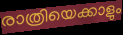
രാത്രിയെക്കാളും